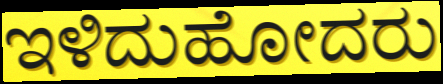
ಇಳಿದುಹೋದರು